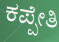
ಕಪ್ಪೇತಿ